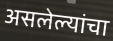
असलेल्यांचा